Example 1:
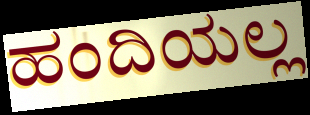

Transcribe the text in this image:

ಹಂದಿಯಲ್ಲ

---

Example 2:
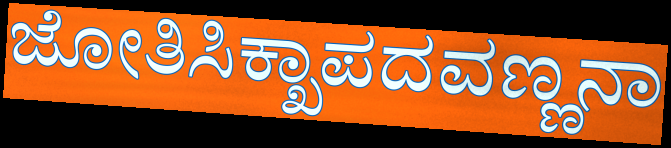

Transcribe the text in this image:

ಜೋತಿಸಿಕ್ಖಾಪದವಣ್ಣನಾ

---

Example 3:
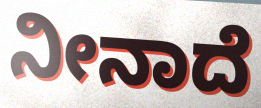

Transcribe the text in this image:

ನೀನಾದೆ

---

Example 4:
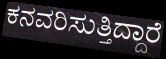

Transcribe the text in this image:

ಕನವರಿಸುತ್ತಿದ್ದಾರೆ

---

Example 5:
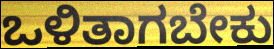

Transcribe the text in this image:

ಒಳಿತಾಗಬೇಕು